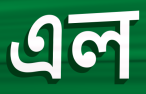
এল